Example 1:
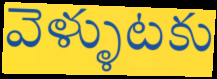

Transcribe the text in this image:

వెళ్ళుటకు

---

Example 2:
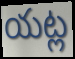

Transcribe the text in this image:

యట్ల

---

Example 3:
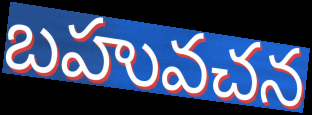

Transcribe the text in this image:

బహువచన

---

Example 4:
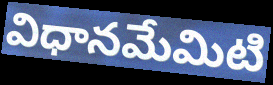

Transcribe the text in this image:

విధానమేమిటి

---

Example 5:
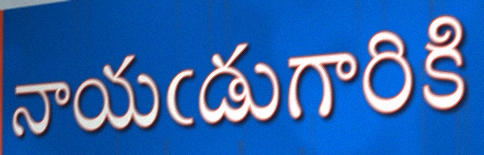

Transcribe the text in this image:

నాయఁడుగారికి